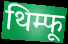
थिम्फू